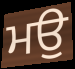
ਮਉ